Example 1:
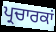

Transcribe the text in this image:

ਪ੍ਰਚਾਰਕਾਂ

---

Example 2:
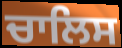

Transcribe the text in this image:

ਚਾਲਿਸ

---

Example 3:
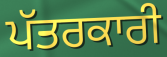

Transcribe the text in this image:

ਪੱਤਰਕਾਰੀ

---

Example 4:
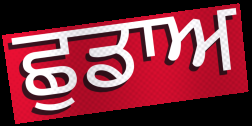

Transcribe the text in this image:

ਛੁਡਾਅ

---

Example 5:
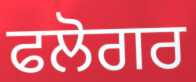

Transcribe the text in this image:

ਫਲੋਗਰ